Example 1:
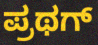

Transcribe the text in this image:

ಪ್ರಥಗ್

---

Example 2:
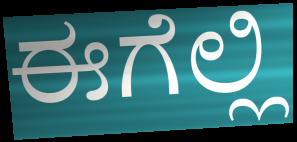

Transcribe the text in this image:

ಈಗೆಲ್ಲಿ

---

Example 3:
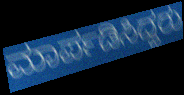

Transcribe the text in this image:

ಮಾರ್ಪಡಿಸಿದ್ದರು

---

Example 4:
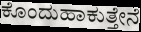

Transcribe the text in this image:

ಕೊಂದುಹಾಕುತ್ತೇನೆ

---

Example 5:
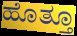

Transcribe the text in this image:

ಹೊತ್ತೂ